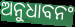
ଅନୁଧାବନଂ